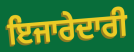
ਇਜਾਰੇਦਾਰੀ